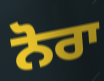
ਨੋਰਾ